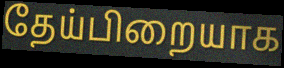
தேய்பிறையாக